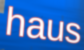
haus